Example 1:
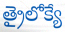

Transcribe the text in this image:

త్రైలోక్యే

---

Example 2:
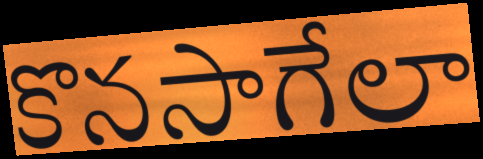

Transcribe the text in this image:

కొనసాగేలా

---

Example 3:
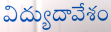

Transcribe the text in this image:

విద్యుదావేశం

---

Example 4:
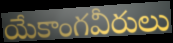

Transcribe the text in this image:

యేకాంగవీరులు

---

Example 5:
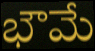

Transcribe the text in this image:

భౌమే